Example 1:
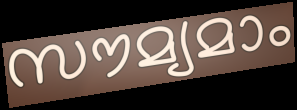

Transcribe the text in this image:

സൗമ്യമാം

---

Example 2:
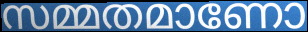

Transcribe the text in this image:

സമ്മതമാണോ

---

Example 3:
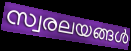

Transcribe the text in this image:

സ്വരലയങ്ങൾ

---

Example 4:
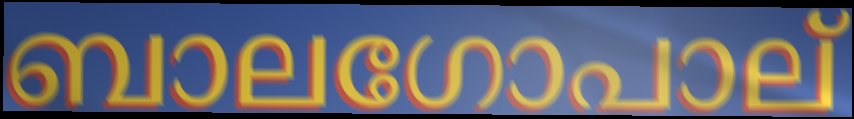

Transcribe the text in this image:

ബാലഗോപാല്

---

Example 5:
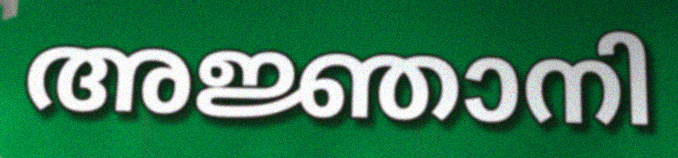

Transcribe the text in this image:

അജ്ഞാനി